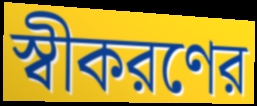
স্বীকরণের